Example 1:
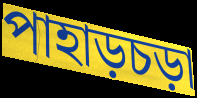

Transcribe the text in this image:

পাহাড়চড়া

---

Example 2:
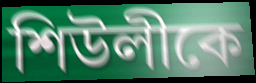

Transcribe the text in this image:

শিউলীকে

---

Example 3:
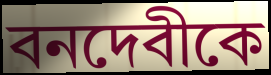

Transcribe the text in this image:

বনদেবীকে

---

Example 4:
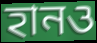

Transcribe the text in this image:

হানও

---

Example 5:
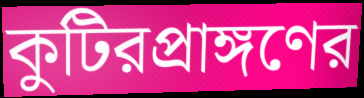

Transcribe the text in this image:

কুটিরপ্রাঙ্গণের